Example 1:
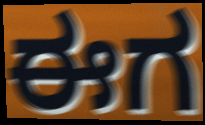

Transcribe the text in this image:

ಈಗ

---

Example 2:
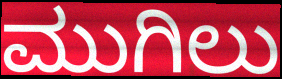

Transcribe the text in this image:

ಮುಗಿಲು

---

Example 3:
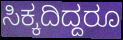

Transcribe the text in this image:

ಸಿಕ್ಕದಿದ್ದರೂ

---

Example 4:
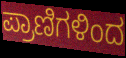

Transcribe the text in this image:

ಪ್ರಾಣಿಗಳಿಂದ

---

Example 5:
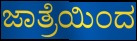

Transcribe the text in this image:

ಜಾತ್ರೆಯಿಂದ